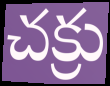
చక్రు